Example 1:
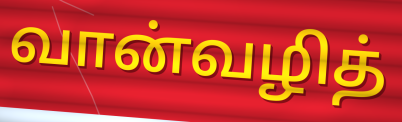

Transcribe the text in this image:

வான்வழித்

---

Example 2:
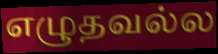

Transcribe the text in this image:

எழுதவல்ல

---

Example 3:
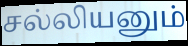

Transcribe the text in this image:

சல்லியனும்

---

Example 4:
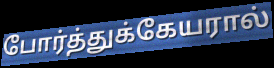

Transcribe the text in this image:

போர்த்துக்கேயரால்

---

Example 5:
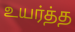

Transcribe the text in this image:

உயர்த்த